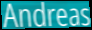
Andreas